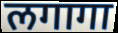
लगागा